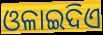
ଓଳାଇଦିଏ